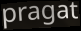
pragat